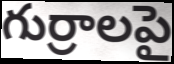
గుర్రాలపై